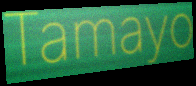
Tamayo